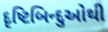
દૃષ્ટિબિન્દુઓથી